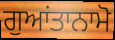
ਗੁਆਂਤਾਨਾਮੋ